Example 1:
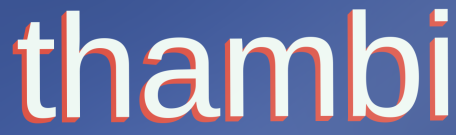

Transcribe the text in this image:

thambi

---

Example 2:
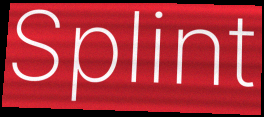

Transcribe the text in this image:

Splint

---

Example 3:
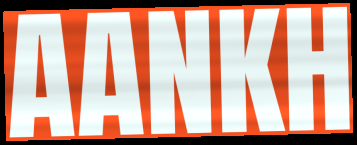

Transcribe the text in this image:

AANKH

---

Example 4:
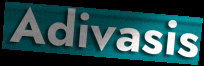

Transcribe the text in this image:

Adivasis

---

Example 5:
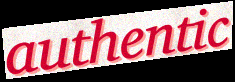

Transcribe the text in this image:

authentic